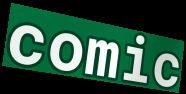
comic